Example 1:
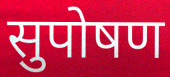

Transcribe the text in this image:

सुपोषण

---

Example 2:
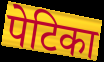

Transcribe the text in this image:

पेटिका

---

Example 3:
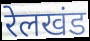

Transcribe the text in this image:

रेलखंड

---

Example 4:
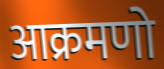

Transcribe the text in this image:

आक्रमणो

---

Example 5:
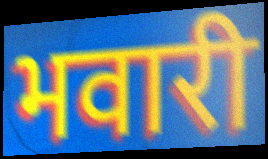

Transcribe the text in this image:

भवारी